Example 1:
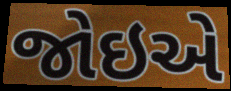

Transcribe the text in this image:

જોઇએ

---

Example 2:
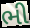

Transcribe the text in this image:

ભી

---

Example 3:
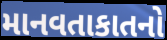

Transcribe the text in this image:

માનવતાકાતનો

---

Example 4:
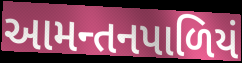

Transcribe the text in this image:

આમન્તનપાળિયં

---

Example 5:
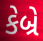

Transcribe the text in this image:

કેબ્રે